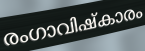
രംഗാവിഷ്‌കാരം